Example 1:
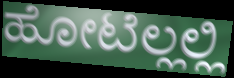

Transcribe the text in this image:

ಹೋಟೆಲ್ಲಲ್ಲಿ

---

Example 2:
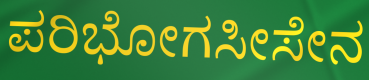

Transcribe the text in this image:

ಪರಿಭೋಗಸೀಸೇನ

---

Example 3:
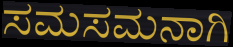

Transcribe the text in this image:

ಸಮಸಮನಾಗಿ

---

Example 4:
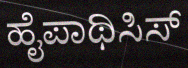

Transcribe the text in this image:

ಹೈಪಾಥಿಸಿಸ್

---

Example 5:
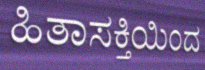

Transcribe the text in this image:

ಹಿತಾಸಕ್ತಿಯಿಂದ